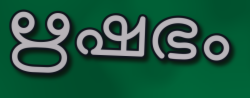
ഋഷഭം